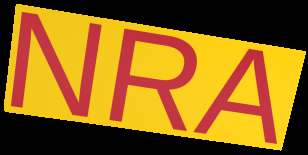
NRA